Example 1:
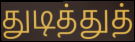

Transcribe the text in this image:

துடித்துத்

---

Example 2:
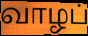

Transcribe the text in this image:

வாழப்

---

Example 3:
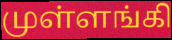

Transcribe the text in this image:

முள்ளங்கி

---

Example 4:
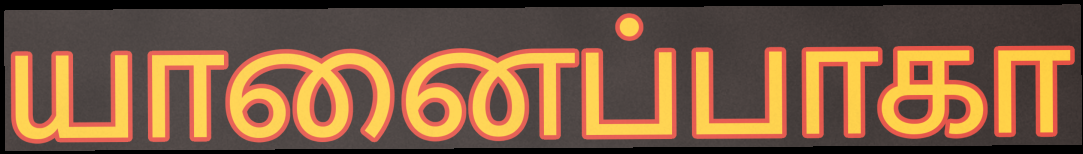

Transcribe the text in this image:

யானைப்பாகா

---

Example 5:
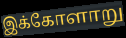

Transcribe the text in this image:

இக்கோளாறு